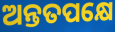
ଅନ୍ତତପକ୍ଷେ